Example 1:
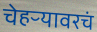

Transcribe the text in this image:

चेहऱ्यावरचं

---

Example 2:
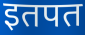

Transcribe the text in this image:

इतपत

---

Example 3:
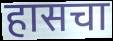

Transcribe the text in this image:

हासचा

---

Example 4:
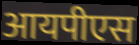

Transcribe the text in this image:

आयपीएस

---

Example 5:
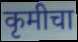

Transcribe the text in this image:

कृमीचा